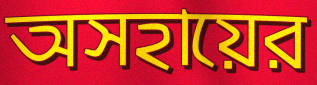
অসহায়ের